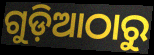
ଗୁଡ଼ିଆଠାରୁ